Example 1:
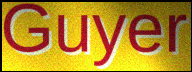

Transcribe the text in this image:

Guyer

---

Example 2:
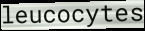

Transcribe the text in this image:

leucocytes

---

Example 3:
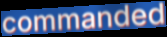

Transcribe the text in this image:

commanded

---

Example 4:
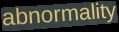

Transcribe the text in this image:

abnormality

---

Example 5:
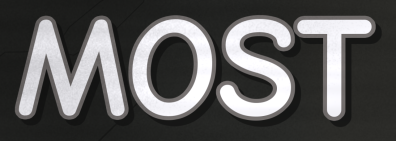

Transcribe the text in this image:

MOST